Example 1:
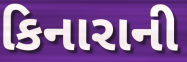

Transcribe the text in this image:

કિનારાની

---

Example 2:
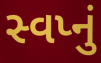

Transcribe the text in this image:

સ્વપ્નું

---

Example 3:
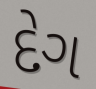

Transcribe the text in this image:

દેગ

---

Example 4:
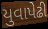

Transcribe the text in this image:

યુવાપેઢી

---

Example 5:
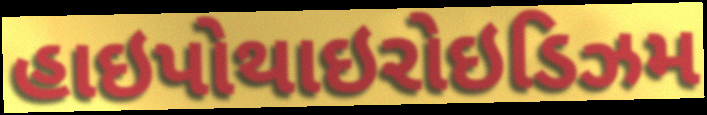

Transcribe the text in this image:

હાઇપોથાઇરોઇડિઝમ